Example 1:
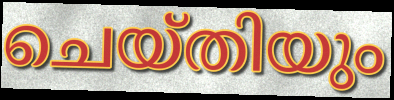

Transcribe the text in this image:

ചെയ്തിയും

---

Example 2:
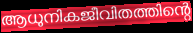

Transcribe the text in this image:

ആധുനികജീവിതത്തിന്റെ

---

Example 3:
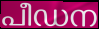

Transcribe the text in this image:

പീഡന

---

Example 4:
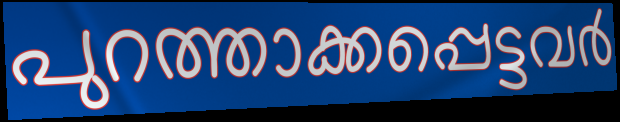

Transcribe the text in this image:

പുറത്താക്കപ്പെട്ടവർ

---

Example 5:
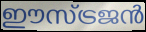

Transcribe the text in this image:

ഈസ്ട്രജൻ